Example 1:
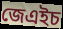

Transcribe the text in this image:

জেএইচ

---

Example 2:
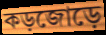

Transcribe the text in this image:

কড়জোড়ে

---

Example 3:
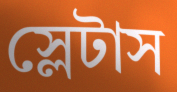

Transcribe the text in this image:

স্লেটাস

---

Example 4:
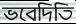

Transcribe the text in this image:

ভবেদিতি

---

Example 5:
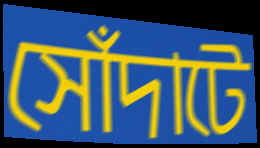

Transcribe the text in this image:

সোঁদাটে